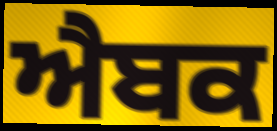
ਐਬਕ